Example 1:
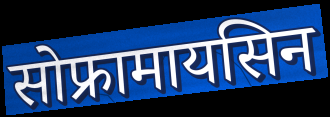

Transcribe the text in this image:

सोफ्रामायसिन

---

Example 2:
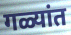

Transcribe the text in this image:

गळ्यांत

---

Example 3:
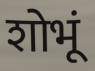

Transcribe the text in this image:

शोभूं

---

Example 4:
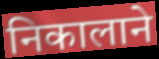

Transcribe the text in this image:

निकालाने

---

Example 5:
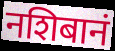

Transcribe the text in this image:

नशिबानं